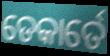
ଡେକାର୍ତେ